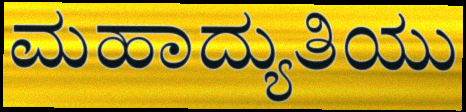
ಮಹಾದ್ಯುತಿಯು